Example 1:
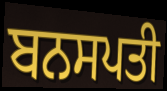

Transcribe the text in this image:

ਬਨਸਪਤੀ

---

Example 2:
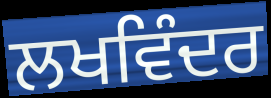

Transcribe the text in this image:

ਲਖਵਿੰਦਰ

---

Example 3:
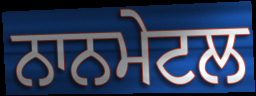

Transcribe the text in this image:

ਨਾਨਮੇਟਲ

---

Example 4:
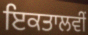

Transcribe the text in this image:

ਇਕਤਾਲਵੀਂ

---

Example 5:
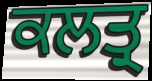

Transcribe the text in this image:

ਕਲਤ੍ਰ